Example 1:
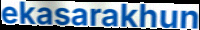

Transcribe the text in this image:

ekasarakhun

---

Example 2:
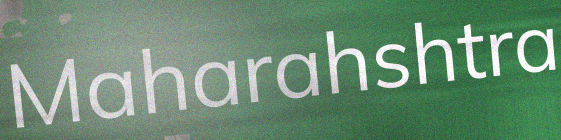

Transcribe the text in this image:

Maharahshtra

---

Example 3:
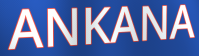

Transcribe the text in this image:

ANKANA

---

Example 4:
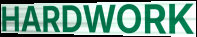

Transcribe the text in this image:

HARDWORK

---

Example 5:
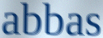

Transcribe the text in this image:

abbas